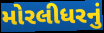
મોરલીધરનું